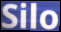
Silo